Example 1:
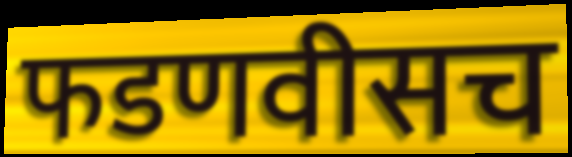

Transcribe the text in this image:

फडणवीसच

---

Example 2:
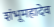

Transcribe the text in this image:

शंभूमहादेव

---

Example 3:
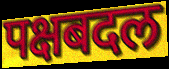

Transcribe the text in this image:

पक्षबदल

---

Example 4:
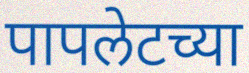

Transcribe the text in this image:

पापलेटच्या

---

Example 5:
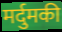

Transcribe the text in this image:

मर्दुमकी